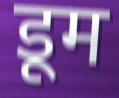
डूम